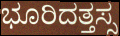
ಭೂರಿದತ್ತಸ್ಸ